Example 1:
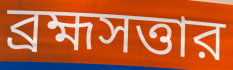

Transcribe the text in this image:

ব্রহ্মসত্তার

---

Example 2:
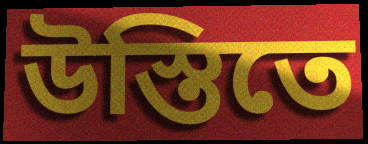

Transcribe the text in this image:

উস্তিতে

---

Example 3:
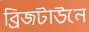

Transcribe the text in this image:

ব্রিজটাউনে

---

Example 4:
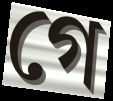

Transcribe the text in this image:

গে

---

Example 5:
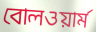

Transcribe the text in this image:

বোলওয়ার্ম